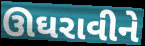
ઊઘરાવીને